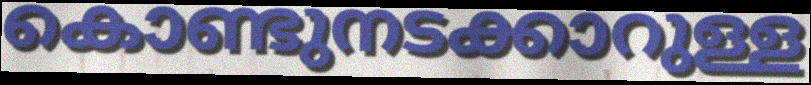
കൊണ്ടുനടക്കാറുള്ള